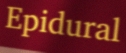
Epidural